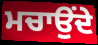
ਮਚਾਉਂਦੇ